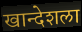
खान्देशला